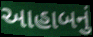
આહાબનું